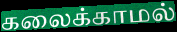
கலைக்காமல்